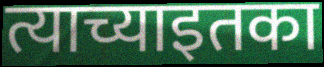
त्याच्याइतका